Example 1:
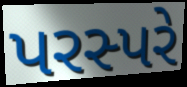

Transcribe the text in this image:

પરસ્પરે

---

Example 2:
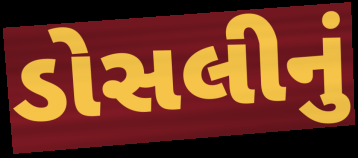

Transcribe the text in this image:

ડોસલીનું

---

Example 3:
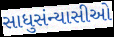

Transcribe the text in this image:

સાધુસંન્યાસીઓ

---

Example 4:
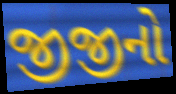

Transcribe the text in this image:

જીજીનો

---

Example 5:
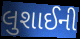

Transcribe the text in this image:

લુશાઈની